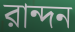
রান্দন